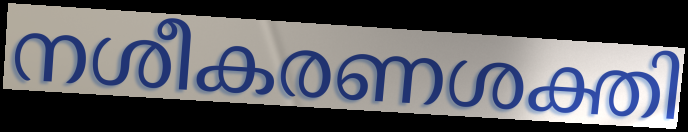
നശീകരണശക്തി